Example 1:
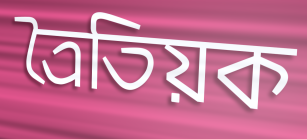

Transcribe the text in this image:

ত্ৰৈতিয়ক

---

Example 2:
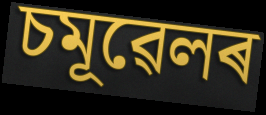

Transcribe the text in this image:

চমূৱেলৰ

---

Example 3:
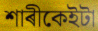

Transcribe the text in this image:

শাৰীকেইটা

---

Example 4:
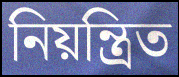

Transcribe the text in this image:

নিয়ন্ত্ৰিত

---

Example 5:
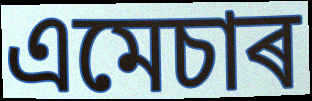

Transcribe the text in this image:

এমেচাৰ